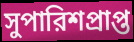
সুপারিশপ্রাপ্ত